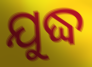
ଯୁଦ୍ଧ